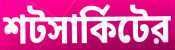
শটসার্কিটের